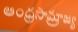
ఆంధ్రసామ్రాజ్య